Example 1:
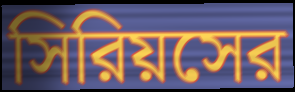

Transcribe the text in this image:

সিরিয়সের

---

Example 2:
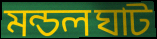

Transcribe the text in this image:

মন্ডলঘাট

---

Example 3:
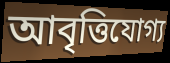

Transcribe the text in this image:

আবৃত্তিযোগ্য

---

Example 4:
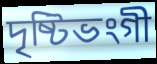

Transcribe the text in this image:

দৃষ্টিভংগী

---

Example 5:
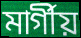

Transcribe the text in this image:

মার্গীয়